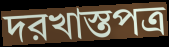
দরখাস্তপত্র